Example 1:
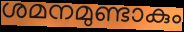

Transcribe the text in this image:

ശമനമുണ്ടാകും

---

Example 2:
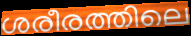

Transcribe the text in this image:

ശരീരത്തിലെ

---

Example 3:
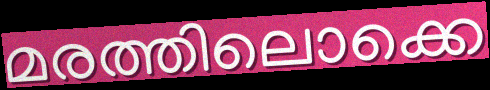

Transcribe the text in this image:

മരത്തിലൊക്കെ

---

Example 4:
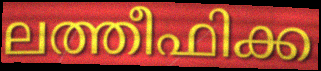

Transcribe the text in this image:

ലത്തീഫിക്ക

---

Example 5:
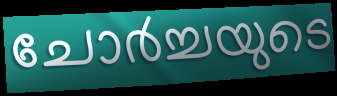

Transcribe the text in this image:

ചോർച്ചയുടെ